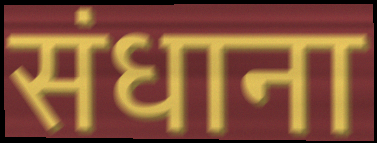
संधाना